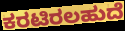
ಕರಟಿರಲಹುದೆ